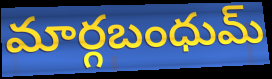
మార్గబంధుమ్